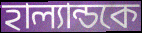
হাল্যান্ডকে